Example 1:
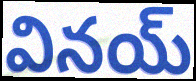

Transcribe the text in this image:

వినయ్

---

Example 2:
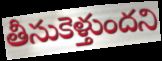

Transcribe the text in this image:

తీసుకెళ్తుందని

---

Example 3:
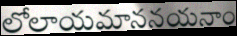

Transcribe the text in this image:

లోలాయమాననయనాం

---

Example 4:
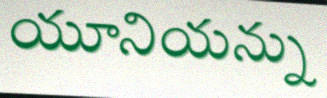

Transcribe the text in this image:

యూనియన్ను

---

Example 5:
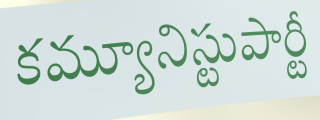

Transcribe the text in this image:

కమ్యూనిస్టుపార్టీ